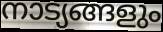
നാട്യങ്ങളും